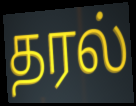
தரல்